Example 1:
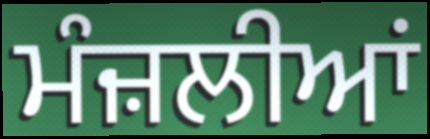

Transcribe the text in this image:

ਮੰਜ਼ਲੀਆਂ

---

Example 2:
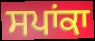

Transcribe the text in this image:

ਸਪਾਂਕਾ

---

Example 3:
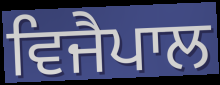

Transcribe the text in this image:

ਵਿਜੈਪਾਲ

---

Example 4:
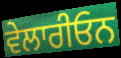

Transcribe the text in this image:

ਵੇਲਾਰੀਓਨ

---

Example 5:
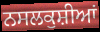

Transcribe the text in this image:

ਨਸਲਕੁਸ਼ੀਆਂ